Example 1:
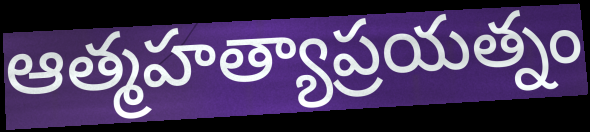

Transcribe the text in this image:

ఆత్మహత్యాప్రయత్నం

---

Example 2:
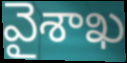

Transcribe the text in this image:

వైశాఖ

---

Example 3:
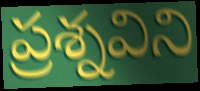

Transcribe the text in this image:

ప్రశ్నవిని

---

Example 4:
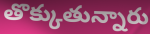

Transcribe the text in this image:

తొక్కుతున్నారు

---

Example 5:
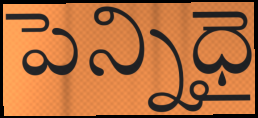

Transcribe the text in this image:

పెన్నిధై